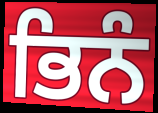
ਭਿਨੰ